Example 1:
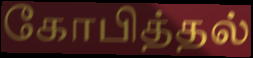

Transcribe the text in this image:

கோபித்தல்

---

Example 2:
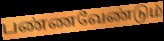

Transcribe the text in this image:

பண்ணவேண்டும்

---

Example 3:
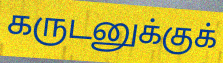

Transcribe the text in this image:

கருடனுக்குக்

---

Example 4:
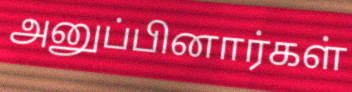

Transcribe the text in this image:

அனுப்பினார்கள்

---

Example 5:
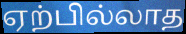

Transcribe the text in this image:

ஏற்பில்லாத